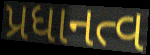
પ્રધાનત્વ